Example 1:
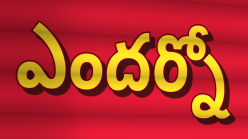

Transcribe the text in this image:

ఎందర్నో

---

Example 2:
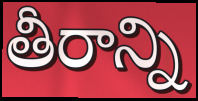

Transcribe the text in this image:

తీరాన్ని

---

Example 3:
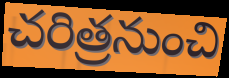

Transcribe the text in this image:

చరిత్రనుంచి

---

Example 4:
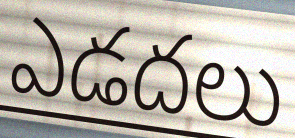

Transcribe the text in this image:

ఎడదలు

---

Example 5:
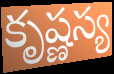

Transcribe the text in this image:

కృష్ణస్య